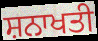
ਸ਼ਨਾਖਤੀ